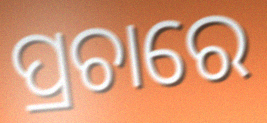
ପ୍ରଚାରେ